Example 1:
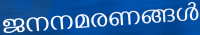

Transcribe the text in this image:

ജനനമരണങ്ങൾ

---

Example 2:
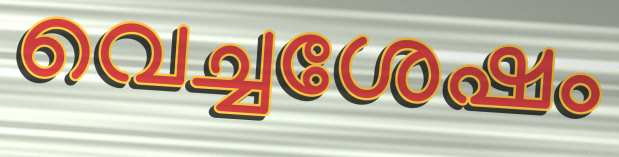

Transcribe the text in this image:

വെച്ചശേഷം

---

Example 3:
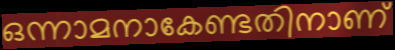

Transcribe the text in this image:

ഒന്നാമനാകേണ്ടതിനാണ്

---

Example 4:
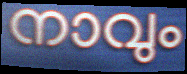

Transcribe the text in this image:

നാവും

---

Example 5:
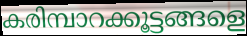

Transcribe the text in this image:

കരിമ്പാറക്കൂട്ടങ്ങളെ